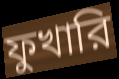
ফুখারি